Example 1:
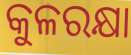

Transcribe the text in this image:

କୁଳରକ୍ଷା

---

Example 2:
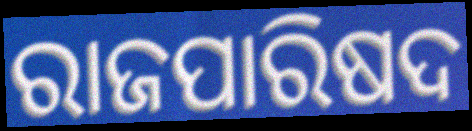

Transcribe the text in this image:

ରାଜପାରିଷଦ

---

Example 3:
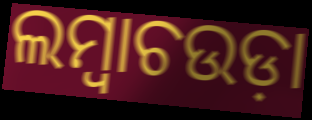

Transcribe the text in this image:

ଲମ୍ୱାଚଉଡ଼ା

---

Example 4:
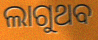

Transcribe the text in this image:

ଲାଗୁଥବ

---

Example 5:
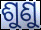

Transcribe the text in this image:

ଶୁଣୁ